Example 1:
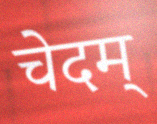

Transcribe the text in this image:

चेदम्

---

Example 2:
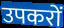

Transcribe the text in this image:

उपकरों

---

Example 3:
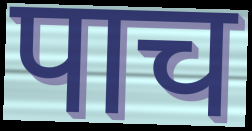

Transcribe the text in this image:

पाच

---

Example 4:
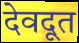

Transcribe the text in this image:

देवदूत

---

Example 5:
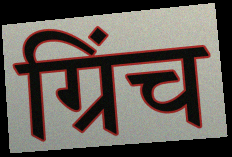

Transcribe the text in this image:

ग्रिंच